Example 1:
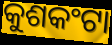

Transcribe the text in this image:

କୁଶକଂଟା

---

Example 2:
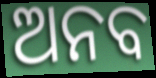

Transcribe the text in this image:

ଅନବ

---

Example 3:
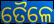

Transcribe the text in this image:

ତୈଳେ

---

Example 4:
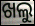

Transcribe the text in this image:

ଖଲୁ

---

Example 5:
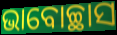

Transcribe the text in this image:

ଭାବୋଚ୍ଛାସ